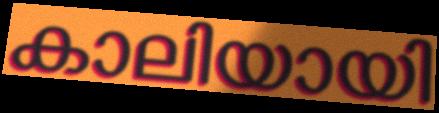
കാലിയായി